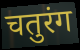
चतुरंग